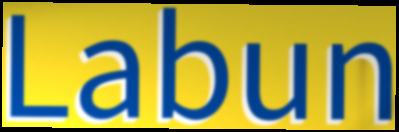
Labun